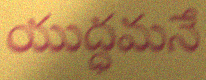
యుద్ధమనే